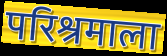
परिश्रमाला